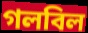
গলবিল